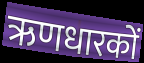
ऋणधारकों